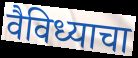
वैविध्याचा